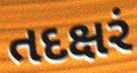
તદક્ષરં